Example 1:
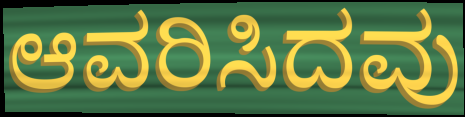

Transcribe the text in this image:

ಆವರಿಸಿದವು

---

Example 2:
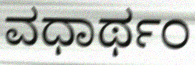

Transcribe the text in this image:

ವಧಾರ್ಥಂ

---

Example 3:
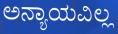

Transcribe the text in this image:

ಅನ್ಯಾಯವಿಲ್ಲ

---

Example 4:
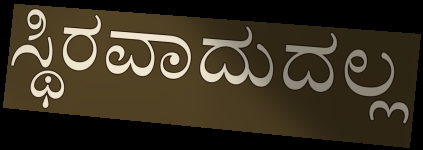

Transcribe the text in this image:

ಸ್ಥಿರವಾದುದಲ್ಲ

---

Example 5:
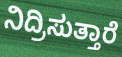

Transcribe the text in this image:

ನಿದ್ರಿಸುತ್ತಾರೆ